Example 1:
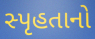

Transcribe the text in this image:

સ્પૃહતાનો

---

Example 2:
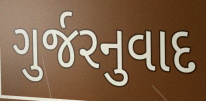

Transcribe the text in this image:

ગુર્જરનુવાદ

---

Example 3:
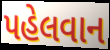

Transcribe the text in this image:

પહેલવાન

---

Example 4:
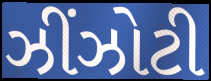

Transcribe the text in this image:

ઝીંઝોટી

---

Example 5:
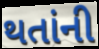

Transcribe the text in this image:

થતાંની